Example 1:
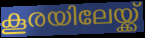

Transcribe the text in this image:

കൂരയിലേയ്ക്ക്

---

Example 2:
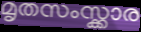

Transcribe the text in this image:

മൃതസംസ്ക്കാര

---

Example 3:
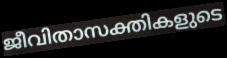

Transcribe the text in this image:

ജീവിതാസക്തികളുടെ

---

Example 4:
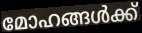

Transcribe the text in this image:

മോഹങ്ങൾക്ക്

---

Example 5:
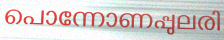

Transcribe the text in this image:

പൊന്നോണപ്പുലരി